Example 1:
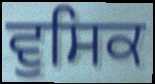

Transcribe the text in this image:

ਵੁਸਿਕ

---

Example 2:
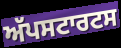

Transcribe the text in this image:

ਅੱਪਸਟਾਰਟਸ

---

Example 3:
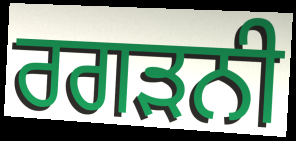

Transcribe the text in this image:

ਰਗੜਨੀ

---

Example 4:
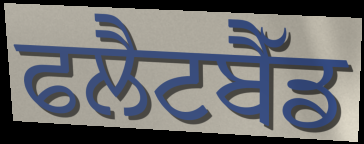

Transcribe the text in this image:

ਫਲੈਟਬੈੱਡ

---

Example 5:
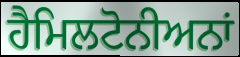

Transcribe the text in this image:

ਹੈਮਿਲਟੋਨੀਅਨਾਂ